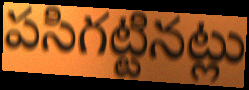
పసిగట్టినట్లు